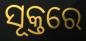
ସୂକ୍ତରେ